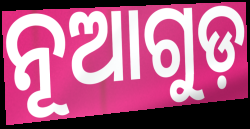
ନୂଆଗୁଡ଼